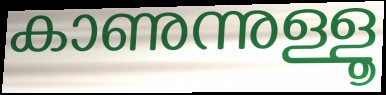
കാണുന്നുള്ളൂ